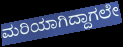
ಮರಿಯಾಗಿದ್ದಾಗಲೇ